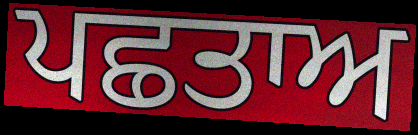
ਪਛਤਾਅ